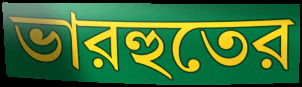
ভারহুতের